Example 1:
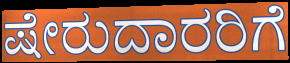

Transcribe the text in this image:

ಷೇರುದಾರರಿಗೆ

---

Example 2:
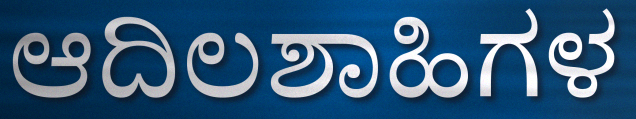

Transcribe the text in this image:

ಆದಿಲಶಾಹಿಗಳ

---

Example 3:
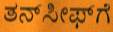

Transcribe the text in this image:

ತನ್‍ಸೀಫ್‍ಗೆ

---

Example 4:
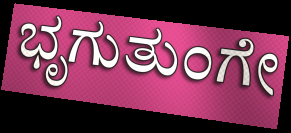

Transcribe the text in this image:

ಭೃಗುತುಂಗೇ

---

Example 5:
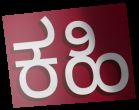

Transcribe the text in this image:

ಕಹಿ